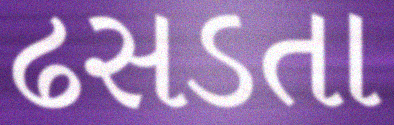
ઢસડતા